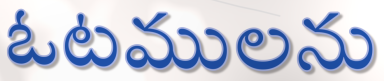
ఓటములను